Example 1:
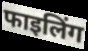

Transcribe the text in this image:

फाइलिंग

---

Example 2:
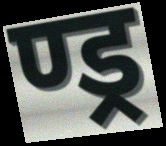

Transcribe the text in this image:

ण्ड्र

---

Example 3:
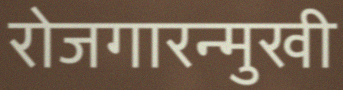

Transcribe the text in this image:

रोजगारन्मुखी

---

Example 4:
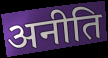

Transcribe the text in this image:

अनीति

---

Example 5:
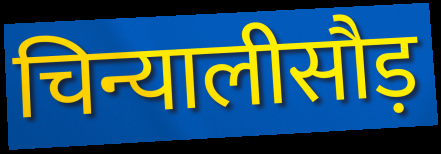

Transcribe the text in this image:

चिन्यालीसौड़